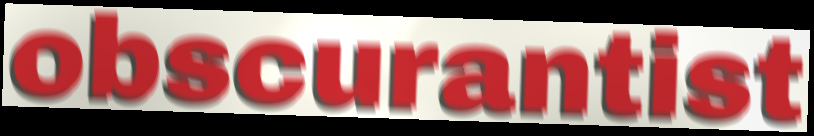
obscurantist